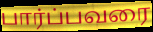
பார்ப்பவரை